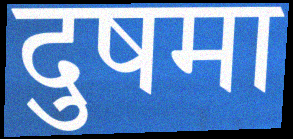
दुषमा